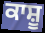
ਕਾਸ਼ੂ